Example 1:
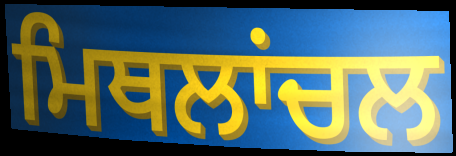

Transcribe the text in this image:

ਮਿਥਲਾਂਚਲ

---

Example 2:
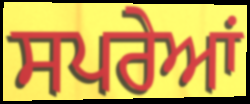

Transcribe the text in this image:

ਸਪਰੇਆਂ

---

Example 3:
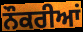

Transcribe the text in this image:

ਨੌਕਰੀਆਂ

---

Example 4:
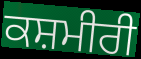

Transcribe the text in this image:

ਕਸ਼ਮੀਰੀ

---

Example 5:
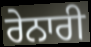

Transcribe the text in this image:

ਰੇਨਾਰੀ